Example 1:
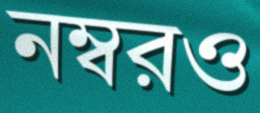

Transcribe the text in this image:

নম্বরও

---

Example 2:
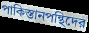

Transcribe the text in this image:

পাকিস্তানপন্থিদের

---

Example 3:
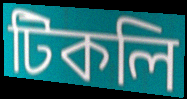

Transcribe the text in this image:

টিকলি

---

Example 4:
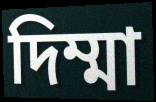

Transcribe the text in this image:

দিম্মা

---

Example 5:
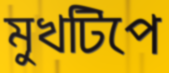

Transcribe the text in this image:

মুখটিপে